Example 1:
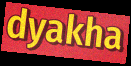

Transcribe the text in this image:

dyakha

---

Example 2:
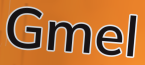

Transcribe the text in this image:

Gmel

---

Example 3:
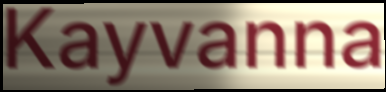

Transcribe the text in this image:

Kayvanna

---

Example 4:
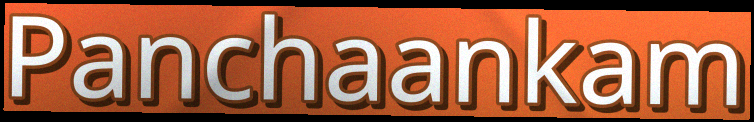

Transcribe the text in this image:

Panchaankam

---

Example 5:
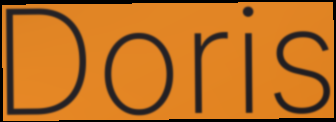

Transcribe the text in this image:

Doris